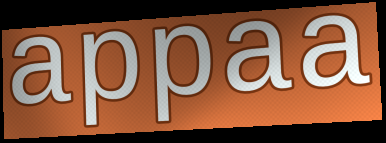
appaa